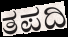
ತಪದಿ